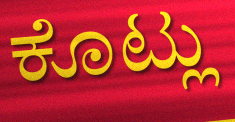
ಕೊಟ್ಲು